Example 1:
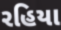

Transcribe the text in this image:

રહિયા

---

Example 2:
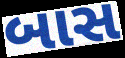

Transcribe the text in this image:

બાસ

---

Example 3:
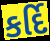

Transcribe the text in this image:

કર્દિ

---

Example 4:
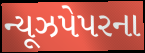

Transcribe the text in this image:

ન્યૂઝપેપરના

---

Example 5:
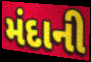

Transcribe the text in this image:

મંદાની